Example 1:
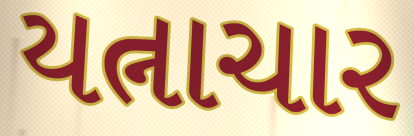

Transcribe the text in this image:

યત્નાચાર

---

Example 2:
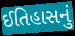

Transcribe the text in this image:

ઈતિહાસનું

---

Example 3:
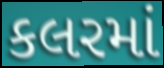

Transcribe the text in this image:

કલરમાં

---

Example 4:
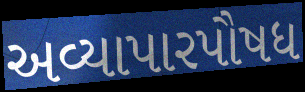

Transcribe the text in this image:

અવ્યાપારપૌષધ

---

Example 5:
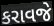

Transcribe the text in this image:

કરાવજે